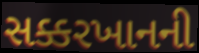
સક્કરખાનની